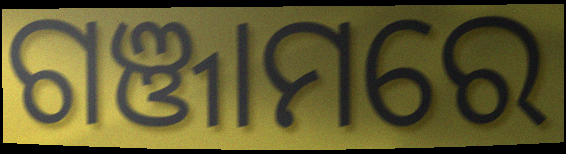
ଗଞ୍ଜାମରେ